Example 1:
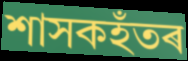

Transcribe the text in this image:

শাসকহঁতৰ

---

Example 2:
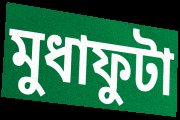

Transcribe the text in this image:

মুধাফুটা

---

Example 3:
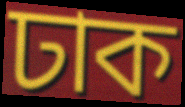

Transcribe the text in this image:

ঢাক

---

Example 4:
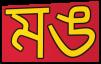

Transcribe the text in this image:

মঙ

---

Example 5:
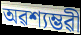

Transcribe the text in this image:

অৱশ্যম্ভৱী